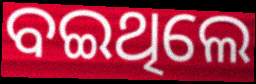
ବଇଥିଲେ